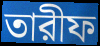
তারীফ